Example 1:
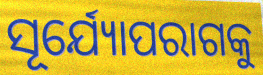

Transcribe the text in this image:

ସୂର୍ଯ୍ୟୋପରାଗକୁ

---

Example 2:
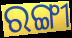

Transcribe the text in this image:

ରଙ୍ଗୀ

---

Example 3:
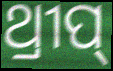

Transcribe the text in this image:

ଥ୍ରୀପ୍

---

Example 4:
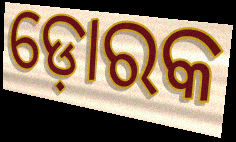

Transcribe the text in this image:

ଡ଼ୋରକ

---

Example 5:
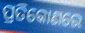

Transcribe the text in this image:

ପ୍ରତିକୋଣରେ